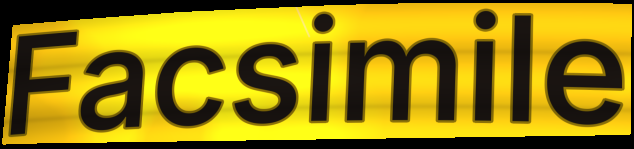
Facsimile